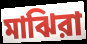
মাঝিরা